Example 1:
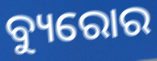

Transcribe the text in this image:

ବ୍ୟୁରୋର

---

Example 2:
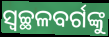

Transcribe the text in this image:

ସ୍ବଚ୍ଛଳବର୍ଗଙ୍କୁ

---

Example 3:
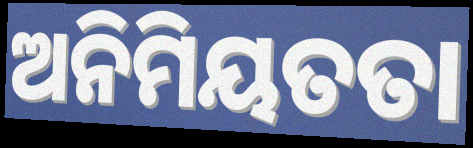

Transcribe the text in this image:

ଅନିମିୟତତା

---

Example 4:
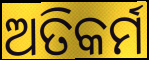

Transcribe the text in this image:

ଅତିକର୍ମ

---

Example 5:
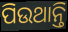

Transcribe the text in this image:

ପିଉଥାନ୍ତି